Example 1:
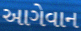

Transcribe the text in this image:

આગેવાન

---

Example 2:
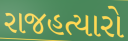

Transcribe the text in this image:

રાજહત્યારો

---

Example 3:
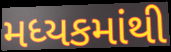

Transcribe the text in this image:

મધ્યકમાંથી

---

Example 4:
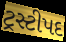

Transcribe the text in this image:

ટ્રસ્ટીપદ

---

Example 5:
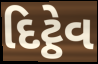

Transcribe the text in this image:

દિટ્ઠેવ